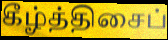
கீழ்த்திசைப்